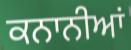
ਕਨਾਨੀਆਂ